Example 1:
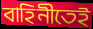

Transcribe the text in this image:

বাহিনীতেই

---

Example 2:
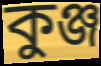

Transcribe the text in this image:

কুঞ্জ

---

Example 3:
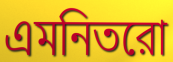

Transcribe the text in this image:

এমনিতরো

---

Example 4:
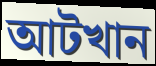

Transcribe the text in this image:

আটখান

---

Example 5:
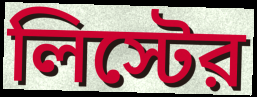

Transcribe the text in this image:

লিস্টের